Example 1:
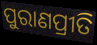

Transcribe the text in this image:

ପୁରାଣପ୍ରୀତି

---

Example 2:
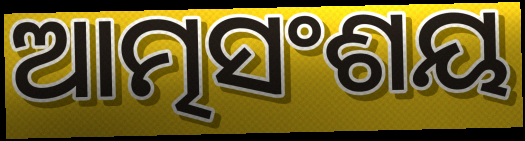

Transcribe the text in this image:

ଆତ୍ମସଂଶୟ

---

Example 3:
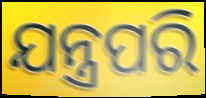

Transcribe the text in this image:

ଯନ୍ତ୍ରପରି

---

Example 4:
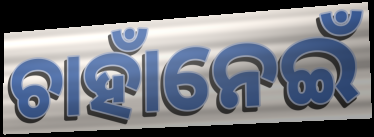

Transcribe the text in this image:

ଚାହାଁନେଇଁ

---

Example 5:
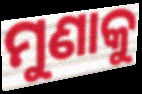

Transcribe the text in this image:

ମୁଣାକୁ